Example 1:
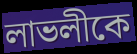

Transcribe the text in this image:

লাভলীকে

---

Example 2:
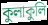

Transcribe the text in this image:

কুলাকুলি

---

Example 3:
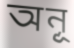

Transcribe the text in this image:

অনূ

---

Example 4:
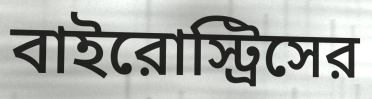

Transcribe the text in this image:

বাইরোস্ট্রিসের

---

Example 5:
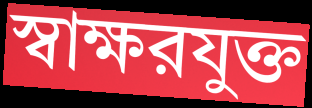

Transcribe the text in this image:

স্বাক্ষরযুক্ত